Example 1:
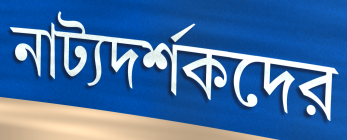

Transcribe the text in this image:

নাট্যদর্শকদের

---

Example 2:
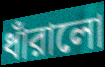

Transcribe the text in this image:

ধাঁরালো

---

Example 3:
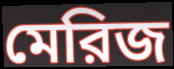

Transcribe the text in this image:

মেরিজ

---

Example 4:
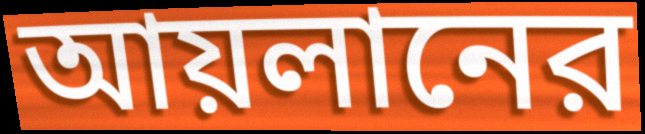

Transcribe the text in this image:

আয়লানের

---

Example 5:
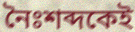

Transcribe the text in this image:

নৈঃশব্দকেই